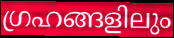
ഗ്രഹങ്ങളിലും